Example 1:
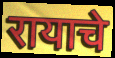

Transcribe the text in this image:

रायाचे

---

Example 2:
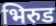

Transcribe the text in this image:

भिरुड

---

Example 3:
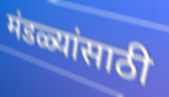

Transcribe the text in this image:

मंडळ्यांसाठी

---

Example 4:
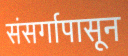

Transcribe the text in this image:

संसर्गापासून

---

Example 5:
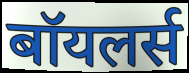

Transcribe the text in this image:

बॉयलर्स